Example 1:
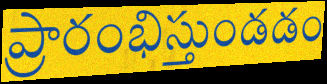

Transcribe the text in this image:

ప్రారంభిస్తుండడం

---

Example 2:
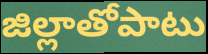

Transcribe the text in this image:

జిల్లాతోపాటు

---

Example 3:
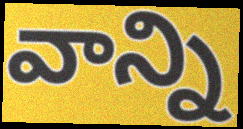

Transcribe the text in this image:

వాన్ని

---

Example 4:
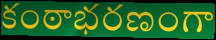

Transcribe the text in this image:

కంఠాభరణంగా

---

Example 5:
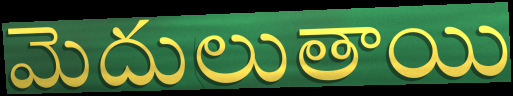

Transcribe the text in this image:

మెదులుతాయి